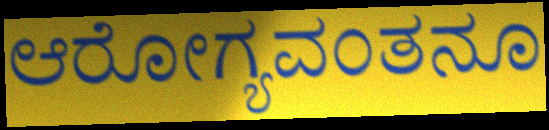
ಆರೋಗ್ಯವಂತನೂ